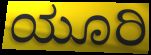
ಯೂರಿ